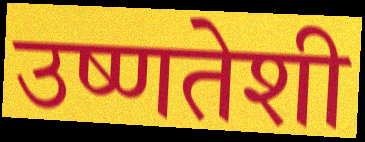
उष्णतेशी